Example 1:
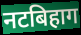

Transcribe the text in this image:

नटबिहाग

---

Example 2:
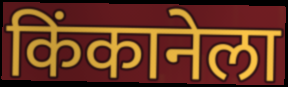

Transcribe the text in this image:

किंकानेला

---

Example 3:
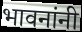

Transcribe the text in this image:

भावनांनी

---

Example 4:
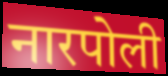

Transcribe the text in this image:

नारपोली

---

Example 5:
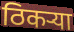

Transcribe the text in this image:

ठिकर्‍या